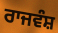
ਰਾਜਵੰਸ਼